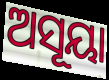
ଅସୂୟା